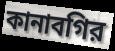
কানাবগির